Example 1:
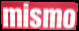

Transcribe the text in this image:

mismo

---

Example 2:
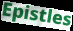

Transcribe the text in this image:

Epistles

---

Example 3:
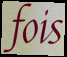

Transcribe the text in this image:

fois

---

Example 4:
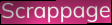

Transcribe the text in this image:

Scrappage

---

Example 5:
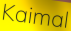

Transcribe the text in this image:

Kaimal